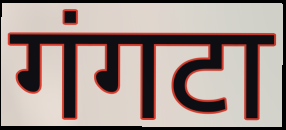
गंगटा